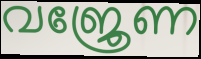
വജ്രേണ